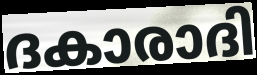
ദകാരാദി